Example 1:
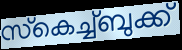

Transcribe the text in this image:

സ്‌കെച്ച്ബുക്ക്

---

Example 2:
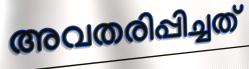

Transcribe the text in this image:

അവതരിപ്പിച്ചത്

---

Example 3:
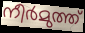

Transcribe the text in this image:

നീർമുത്ത്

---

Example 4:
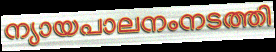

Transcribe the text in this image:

ന്യായപാലനംനടത്തി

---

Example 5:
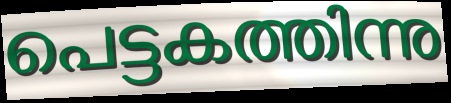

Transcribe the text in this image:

പെട്ടകത്തിന്നു